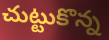
చుట్టుకొన్న